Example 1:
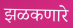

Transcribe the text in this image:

झळकणारे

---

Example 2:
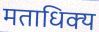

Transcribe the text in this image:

मताधिक्‍य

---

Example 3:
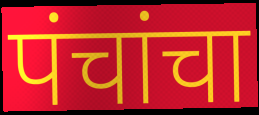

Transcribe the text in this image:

पंचांचा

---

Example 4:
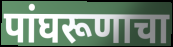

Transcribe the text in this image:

पांघरूणाचा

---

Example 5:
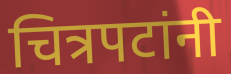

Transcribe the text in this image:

चित्रपटांनी